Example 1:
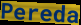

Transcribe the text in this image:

Pereda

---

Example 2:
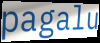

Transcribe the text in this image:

pagalu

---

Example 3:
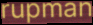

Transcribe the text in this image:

rupman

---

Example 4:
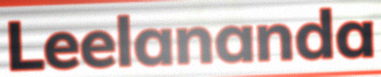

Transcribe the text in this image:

Leelananda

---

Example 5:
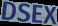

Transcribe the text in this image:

DSEX